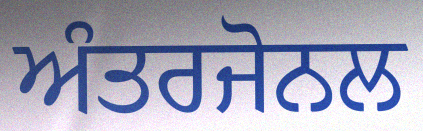
ਅੰਤਰਜੋਨਲ